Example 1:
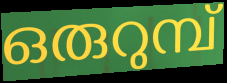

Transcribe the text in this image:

ഒരുറുമ്പ്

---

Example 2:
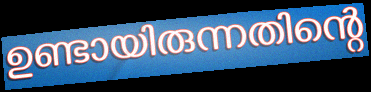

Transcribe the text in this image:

ഉണ്ടായിരുന്നതിന്റെ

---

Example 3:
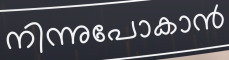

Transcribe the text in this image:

നിന്നുപോകാൻ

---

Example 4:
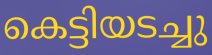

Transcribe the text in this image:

കെട്ടിയടച്ചു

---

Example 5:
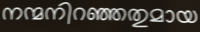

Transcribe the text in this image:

നന്മനിറഞ്ഞതുമായ